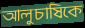
আলুচাষিকে